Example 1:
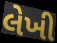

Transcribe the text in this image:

લેખી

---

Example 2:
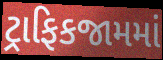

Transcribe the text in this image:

ટ્રાફિકજામમાં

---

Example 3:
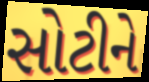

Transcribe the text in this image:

સોટીને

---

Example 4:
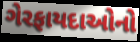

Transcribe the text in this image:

ગેરફાયદાઓનો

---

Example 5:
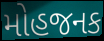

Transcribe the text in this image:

મોહજનક